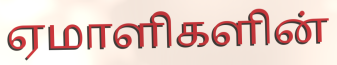
ஏமாளிகளின்